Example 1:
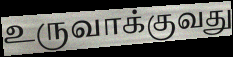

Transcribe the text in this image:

உருவாக்குவது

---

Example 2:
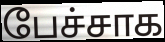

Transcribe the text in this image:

பேச்சாக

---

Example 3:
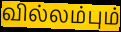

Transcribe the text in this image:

வில்லம்பும்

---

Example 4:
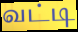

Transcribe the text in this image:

வட்டி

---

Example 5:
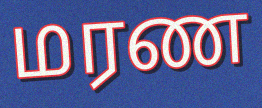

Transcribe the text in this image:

மரண